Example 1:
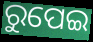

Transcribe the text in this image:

ରୁପେଇ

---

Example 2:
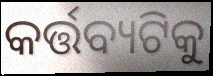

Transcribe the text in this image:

କର୍ତ୍ତବ୍ୟଟିକୁ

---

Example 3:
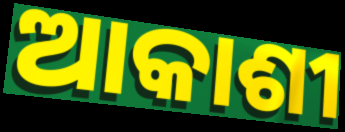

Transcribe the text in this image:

ଆକାଶୀ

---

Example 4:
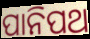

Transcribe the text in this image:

ପାନିପଥ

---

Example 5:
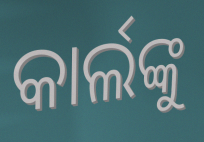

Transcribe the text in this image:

କାର୍ଲଙ୍କୁ